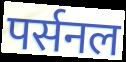
पर्सनल